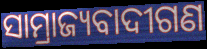
ସାମ୍ରାଜ୍ୟବାଦୀଗଣ